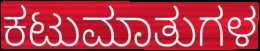
ಕಟುಮಾತುಗಳ